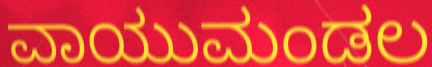
ವಾಯುಮಂಡಲ